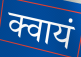
क्वायं